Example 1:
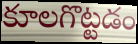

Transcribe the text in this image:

కూలగొట్టడం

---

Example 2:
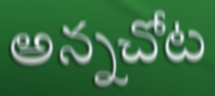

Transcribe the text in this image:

అన్నచోట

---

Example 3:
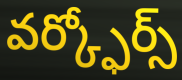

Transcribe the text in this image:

వర్క్ఫోర్స్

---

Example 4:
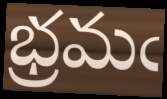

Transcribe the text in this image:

భ్రమఁ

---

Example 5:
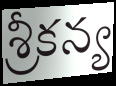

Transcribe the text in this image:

శ్రీకన్య